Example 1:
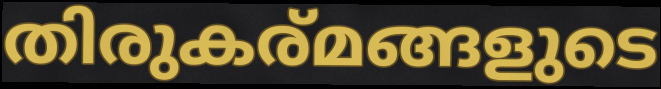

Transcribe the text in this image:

തിരുകര്മങ്ങളുടെ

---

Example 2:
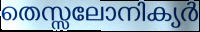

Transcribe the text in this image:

തെസ്സലോനിക്യർ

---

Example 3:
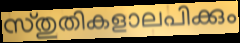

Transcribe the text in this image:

സ്തുതികളാലപിക്കും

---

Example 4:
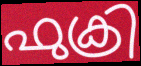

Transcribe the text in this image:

ഫുക്രി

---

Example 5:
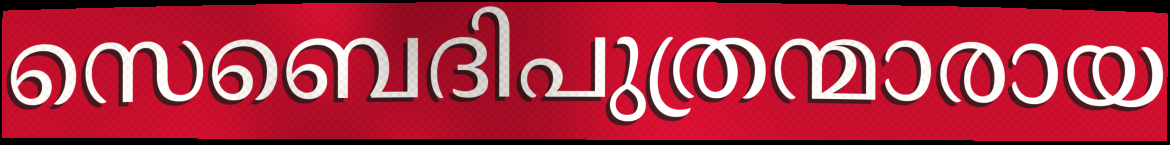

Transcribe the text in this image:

സെബെദിപുത്രന്മാരായ